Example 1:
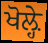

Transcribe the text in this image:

ਖੋਲ਼੍ਹੇ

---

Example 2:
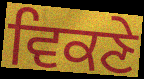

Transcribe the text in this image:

ਵਿਕਣੇ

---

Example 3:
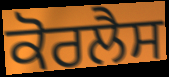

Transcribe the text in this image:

ਕੋਰਲੈਸ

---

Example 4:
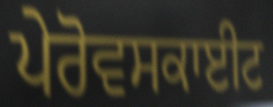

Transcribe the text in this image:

ਪੇਰੋਵਸਕਾਈਟ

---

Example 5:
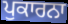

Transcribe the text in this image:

ਪੁਕਾਰਨਾ